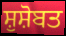
ਸ਼ੁਸ਼ੋਬਤ